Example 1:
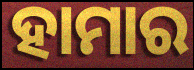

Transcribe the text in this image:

ହାମାର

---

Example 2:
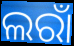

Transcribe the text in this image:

ଲରାଁ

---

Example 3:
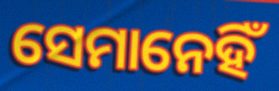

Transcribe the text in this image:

ସେମାନେହିଁ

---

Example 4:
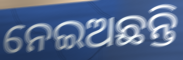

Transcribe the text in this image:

ନେଇଅଛନ୍ତି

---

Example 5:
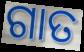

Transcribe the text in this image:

ଗାତ